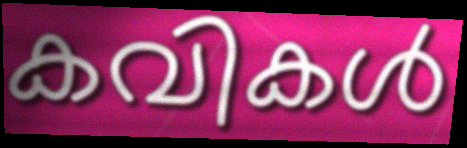
കവികൾ